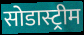
सोडास्ट्रीम